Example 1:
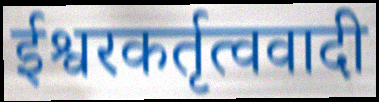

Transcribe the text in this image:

ईश्वरकर्तृत्ववादी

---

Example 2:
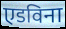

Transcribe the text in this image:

एडविना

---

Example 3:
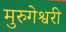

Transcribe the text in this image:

मुरुगेश्वरी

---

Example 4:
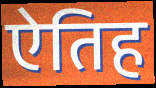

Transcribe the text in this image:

ऐतिह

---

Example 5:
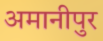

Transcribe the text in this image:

अमानीपुर